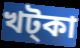
খট্কা